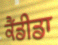
ਕੈਂਡੀਡਾ